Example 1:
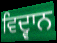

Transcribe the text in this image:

ਵਿਦ੍ਵਾਨ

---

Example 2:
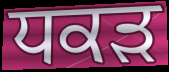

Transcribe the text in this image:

ਧਕੜ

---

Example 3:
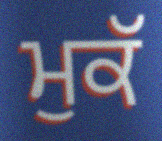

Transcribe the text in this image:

ਮੁਕੱ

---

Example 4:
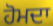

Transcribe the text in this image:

ਹੋਮਦਾ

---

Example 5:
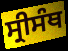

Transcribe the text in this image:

ਸ੍ਰੀਸੰਥ